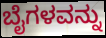
ಬೈಗಳವನ್ನು